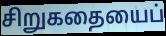
சிறுகதையைப்